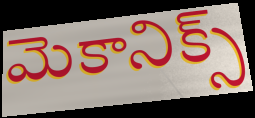
మెకానిక్స్